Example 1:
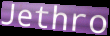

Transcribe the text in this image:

Jethro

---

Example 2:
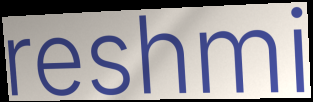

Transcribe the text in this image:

reshmi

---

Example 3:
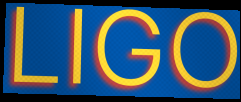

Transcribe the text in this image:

LIGO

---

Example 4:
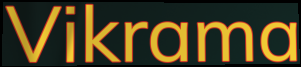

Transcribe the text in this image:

Vikrama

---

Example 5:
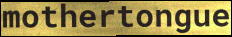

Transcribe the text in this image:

mothertongue